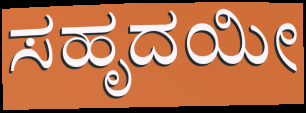
ಸಹೃದಯೀ